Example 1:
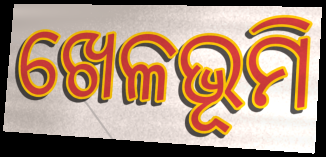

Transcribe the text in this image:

ଖେଳଭୂମି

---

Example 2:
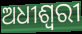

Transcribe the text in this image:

ଅଧୀଶ୍ୱରୀ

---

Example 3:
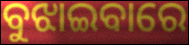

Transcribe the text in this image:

ବୁଝାଇବାରେ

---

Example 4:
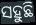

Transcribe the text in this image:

ସହୁଛି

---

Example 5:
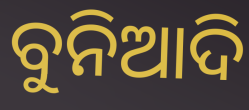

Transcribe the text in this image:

ବୁନିଆଦି